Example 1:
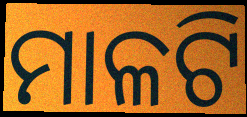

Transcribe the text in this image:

ମାଳଟି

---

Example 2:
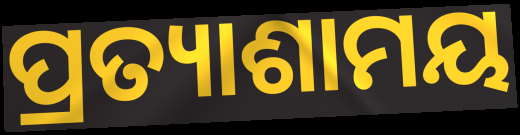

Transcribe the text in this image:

ପ୍ରତ୍ୟାଶାମୟ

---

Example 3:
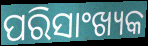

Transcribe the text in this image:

ପରିସାଂଖ୍ୟକ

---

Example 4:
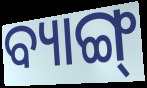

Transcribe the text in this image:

ବ୍ୟାଙ୍ଗ୍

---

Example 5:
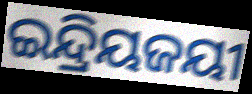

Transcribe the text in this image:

ଇନ୍ଦ୍ରିୟଜୟୀ